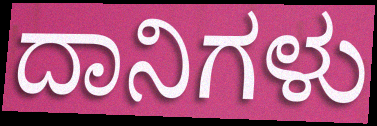
ದಾನಿಗಳು